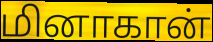
மினாகான்